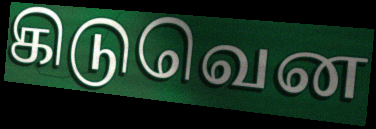
கிடுவென